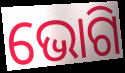
ଭୋଗି